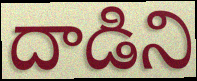
దాడిని